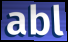
abl